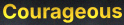
Courageous